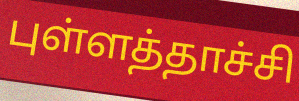
புள்ளத்தாச்சி